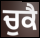
ਚੁਕੈ